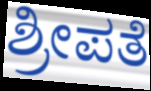
ಶ್ರೀಪತೆ